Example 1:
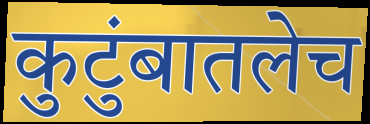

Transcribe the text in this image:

कुटुंबातलेच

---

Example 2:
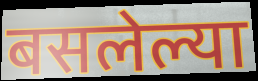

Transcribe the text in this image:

बसलेल्या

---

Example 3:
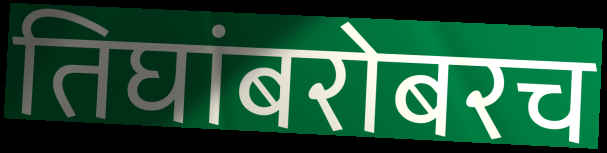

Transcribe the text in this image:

तिघांबरोबरच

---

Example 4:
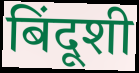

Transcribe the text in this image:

बिंदूशी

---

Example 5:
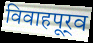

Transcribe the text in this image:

विवाहपूर्व